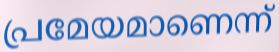
പ്രമേയമാണെന്ന്